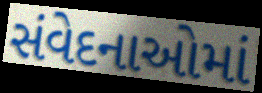
સંવેદનાઓમાં